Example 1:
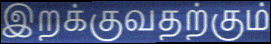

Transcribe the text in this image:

இறக்குவதற்கும்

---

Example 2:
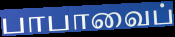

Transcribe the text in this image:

பாபாவைப்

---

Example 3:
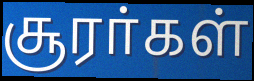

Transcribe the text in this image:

சூரர்கள்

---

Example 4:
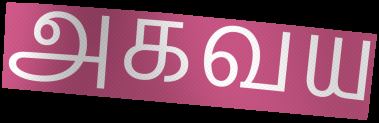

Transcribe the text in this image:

அகவய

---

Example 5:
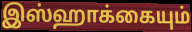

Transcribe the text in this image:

இஸ்ஹாக்கையும்